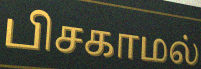
பிசகாமல்